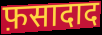
फ़सादाद